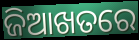
ଜିଆଖତରେ